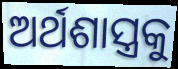
ଅର୍ଥଶାସ୍ତ୍ରକୁ